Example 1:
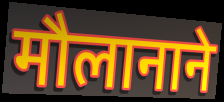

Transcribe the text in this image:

मौलानाने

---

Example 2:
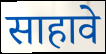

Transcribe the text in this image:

साहावे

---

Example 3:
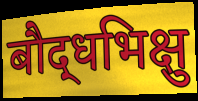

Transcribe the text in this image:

बौद्धभिक्षु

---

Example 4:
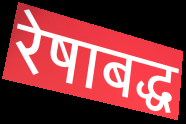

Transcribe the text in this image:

रेषाबद्ध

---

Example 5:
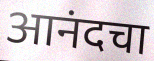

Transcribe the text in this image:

आनंदचा